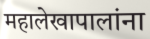
महालेखापालांना